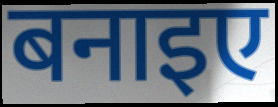
बनाइए